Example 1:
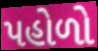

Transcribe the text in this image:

પહોળો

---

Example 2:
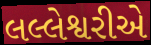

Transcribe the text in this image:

લલ્લેશ્વરીએ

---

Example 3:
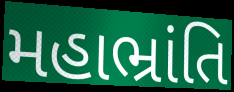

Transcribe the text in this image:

મહાભ્રાંતિ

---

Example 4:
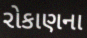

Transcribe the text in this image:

રોકાણના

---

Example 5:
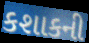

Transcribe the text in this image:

કશાકની